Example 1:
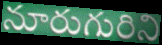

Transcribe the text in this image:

నూరుగురిని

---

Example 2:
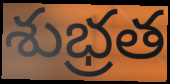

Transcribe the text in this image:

శుభ్రత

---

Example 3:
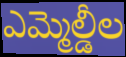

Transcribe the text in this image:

ఎమ్మెల్డీల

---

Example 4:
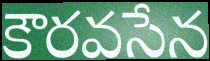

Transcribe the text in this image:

కౌరవసేన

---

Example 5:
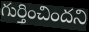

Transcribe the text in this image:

గుర్తించిందని